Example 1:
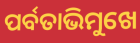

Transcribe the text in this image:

ପର୍ବତାଭିମୁଖେ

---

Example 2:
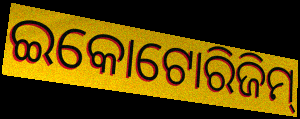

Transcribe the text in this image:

ଇକୋଟୋରିଜିମ୍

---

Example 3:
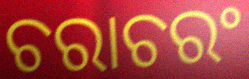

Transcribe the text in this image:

ଚରାଚରଂ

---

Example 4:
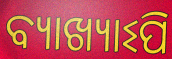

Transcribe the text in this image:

ବ୍ୟାଖ୍ୟାଽପି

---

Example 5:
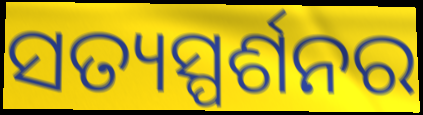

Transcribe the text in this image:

ସତ୍ୟସ୍ପର୍ଶନର